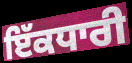
ਇੱਕਧਾਰੀ